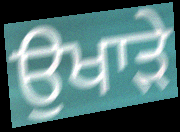
ਉਖਾੜੇ